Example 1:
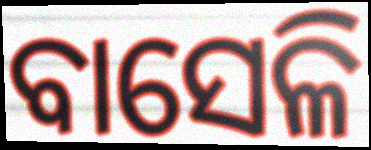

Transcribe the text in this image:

ବାସେଳି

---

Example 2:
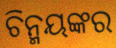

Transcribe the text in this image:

ଚିନ୍ମୟଙ୍କର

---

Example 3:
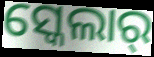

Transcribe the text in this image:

ସ୍କେଲାର୍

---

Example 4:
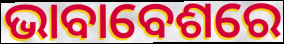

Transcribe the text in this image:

ଭାବାବେଶରେ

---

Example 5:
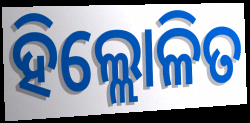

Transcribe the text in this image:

ହିଲ୍ଲୋଳିତ